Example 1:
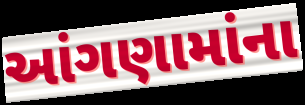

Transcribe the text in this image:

આંગણામાંના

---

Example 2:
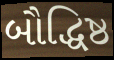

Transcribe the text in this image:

બૌદ્ધિષ્ઠ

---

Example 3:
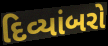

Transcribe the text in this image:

દિવ્યાંબરો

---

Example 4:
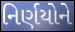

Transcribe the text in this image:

નિર્ણયોને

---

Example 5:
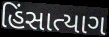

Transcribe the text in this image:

હિંસાત્યાગ